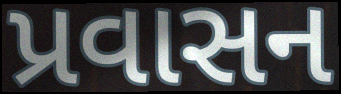
પ્રવાસન